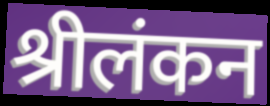
श्रीलंकन